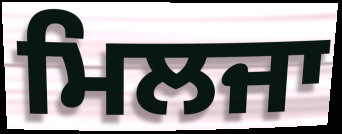
ਮਿਲਜਾ